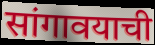
सांगावयाची